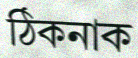
ঠিকনাক